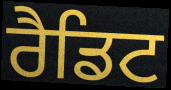
ਰੈਡਿਟ